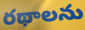
రథాలను